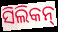
ସିଲିକନ୍